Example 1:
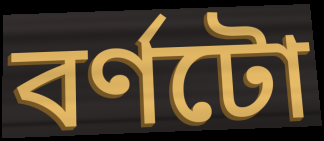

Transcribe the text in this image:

বৰ্ণটো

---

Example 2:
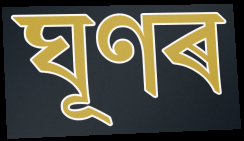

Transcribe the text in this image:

ঘূণৰ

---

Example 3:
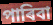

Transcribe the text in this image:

পাৰিবা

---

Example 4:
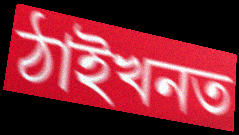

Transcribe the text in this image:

ঠাইখনত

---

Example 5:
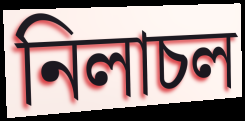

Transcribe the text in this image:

নিলাচল